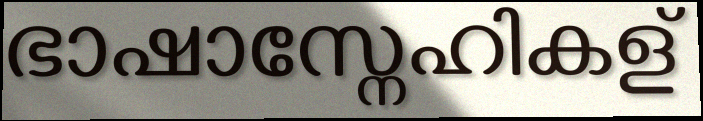
ഭാഷാസ്നേഹികള്